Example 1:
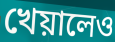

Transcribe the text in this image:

খেয়ালেও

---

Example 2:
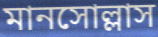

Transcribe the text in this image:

মানসোল্লাস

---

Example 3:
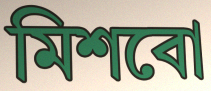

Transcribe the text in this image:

মিশবো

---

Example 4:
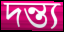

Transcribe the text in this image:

দন্ত্য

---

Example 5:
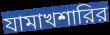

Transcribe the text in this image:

যামাখশারির